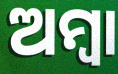
ଅମ୍ବା